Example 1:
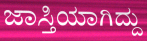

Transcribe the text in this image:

ಜಾಸ್ತಿಯಾಗಿದ್ದು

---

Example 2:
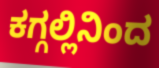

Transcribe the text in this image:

ಕಗ್ಗಲ್ಲಿನಿಂದ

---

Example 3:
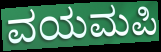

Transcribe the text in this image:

ವಯಮಪಿ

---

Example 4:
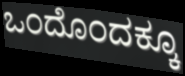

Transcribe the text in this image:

ಒಂದೊಂದಕ್ಕೂ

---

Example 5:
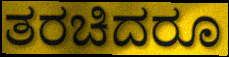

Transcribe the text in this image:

ತರಚಿದರೂ